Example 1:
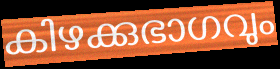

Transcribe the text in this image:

കിഴക്കുഭാഗവും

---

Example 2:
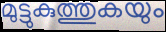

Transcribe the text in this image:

മുട്ടുകുത്തുകയും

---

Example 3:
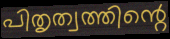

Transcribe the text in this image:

പിതൃത്വത്തിന്റെ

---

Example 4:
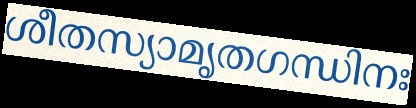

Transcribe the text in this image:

ശീതസ്യാമൃതഗന്ധിനഃ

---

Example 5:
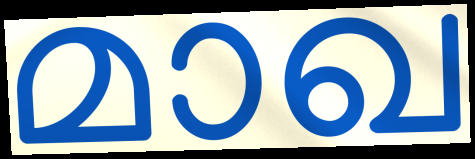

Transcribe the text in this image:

മാഖ